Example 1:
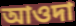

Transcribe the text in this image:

আওদা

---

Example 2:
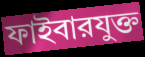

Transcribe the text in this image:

ফাইবারযুক্ত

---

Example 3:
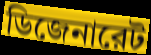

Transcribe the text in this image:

ডিজেনারেট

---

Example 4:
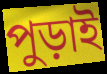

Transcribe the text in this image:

পুড়াই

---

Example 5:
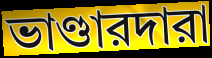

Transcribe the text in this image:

ভাণ্ডারদারা